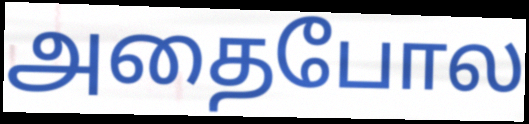
அதைபோல